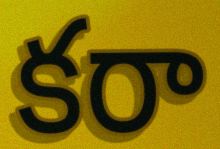
కరా